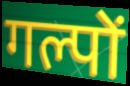
गल्पों